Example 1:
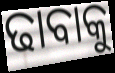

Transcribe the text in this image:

ଢାବାକୁ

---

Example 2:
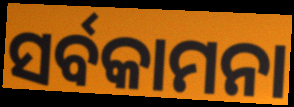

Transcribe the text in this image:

ସର୍ବକାମନା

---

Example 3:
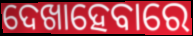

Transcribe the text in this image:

ଦେଖାହେବାରେ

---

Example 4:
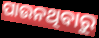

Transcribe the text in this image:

ପାଉନଥିବାରୁ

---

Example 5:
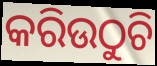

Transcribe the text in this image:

କରିଉଠୁଚି